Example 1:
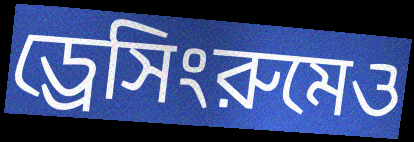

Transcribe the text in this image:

ড্রেসিংরুমেও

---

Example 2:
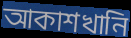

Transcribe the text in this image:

আকাশখানি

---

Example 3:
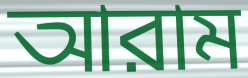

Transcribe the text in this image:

আরাম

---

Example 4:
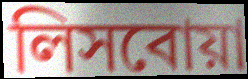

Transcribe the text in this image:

লিসবোয়া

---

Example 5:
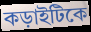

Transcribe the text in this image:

কড়াইটিকে